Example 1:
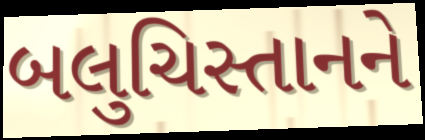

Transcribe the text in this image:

બલુચિસ્તાનને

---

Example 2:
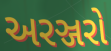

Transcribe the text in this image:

અરઞ્જરો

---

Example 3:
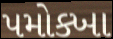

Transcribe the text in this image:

પમોક્ખા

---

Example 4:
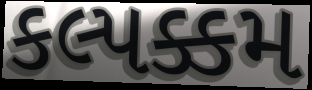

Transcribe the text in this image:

કલ્પક્કમ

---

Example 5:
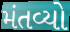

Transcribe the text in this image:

મંતવ્યો